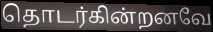
தொடர்கின்றனவே